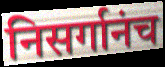
निसर्गानंच